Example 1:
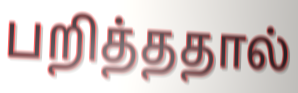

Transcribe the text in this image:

பறித்ததால்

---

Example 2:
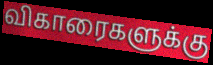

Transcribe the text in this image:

விகாரைகளுக்கு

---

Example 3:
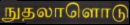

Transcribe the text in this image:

நுதலாளொடு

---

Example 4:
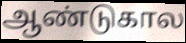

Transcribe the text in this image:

ஆண்டுகால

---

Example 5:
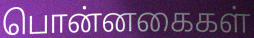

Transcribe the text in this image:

பொன்னகைகள்